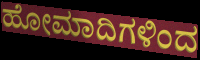
ಹೋಮಾದಿಗಳಿಂದ